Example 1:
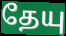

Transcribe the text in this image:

தேயு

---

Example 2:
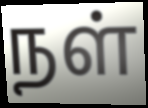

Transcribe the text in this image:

நள்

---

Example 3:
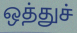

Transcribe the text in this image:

ஒத்துச்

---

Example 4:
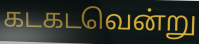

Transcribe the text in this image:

கடகடவென்று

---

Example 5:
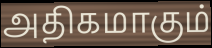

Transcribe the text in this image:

அதிகமாகும்